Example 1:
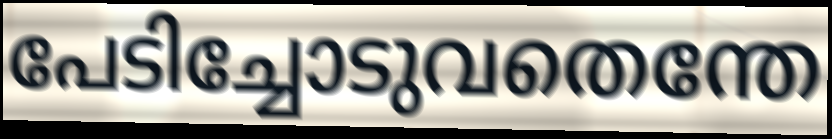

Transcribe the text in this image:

പേടിച്ചോടുവതെന്തേ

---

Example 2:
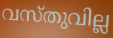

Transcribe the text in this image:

വസ്തുവില്ല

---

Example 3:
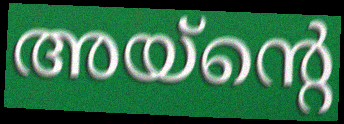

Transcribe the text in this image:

അയ്ന്റെ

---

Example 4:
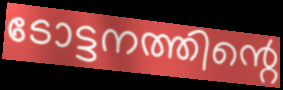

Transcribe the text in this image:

ടോട്ടനത്തിന്റെ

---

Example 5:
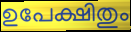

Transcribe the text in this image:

ഉപേക്ഷിതും